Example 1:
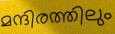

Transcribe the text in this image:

മന്ദിരത്തിലും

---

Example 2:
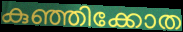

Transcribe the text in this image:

കുഞ്ഞിക്കോത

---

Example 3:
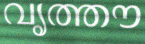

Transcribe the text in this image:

വൃത്തൗ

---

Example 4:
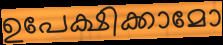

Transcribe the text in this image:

ഉപേക്ഷിക്കാമോ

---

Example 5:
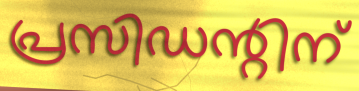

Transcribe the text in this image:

പ്രസിഡന്റിന്